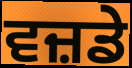
ਵਜ਼ਡੇ